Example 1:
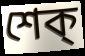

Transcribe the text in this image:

শেক্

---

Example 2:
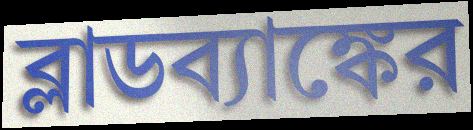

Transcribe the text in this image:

ব্লাডব্যাঙ্কের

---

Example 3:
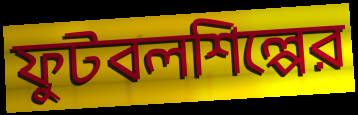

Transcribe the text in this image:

ফুটবলশিল্পের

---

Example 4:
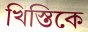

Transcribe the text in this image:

খিস্তিকে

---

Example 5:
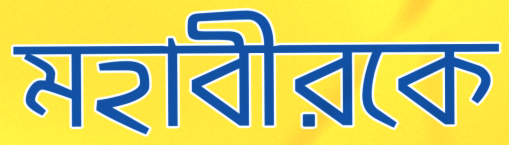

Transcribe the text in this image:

মহাবীরকে